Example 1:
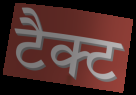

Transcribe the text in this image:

टैक्ट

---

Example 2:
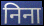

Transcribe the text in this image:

निना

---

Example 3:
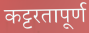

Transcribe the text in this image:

कट्टरतापूर्ण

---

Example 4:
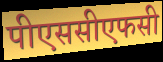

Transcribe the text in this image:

पीएससीएफसी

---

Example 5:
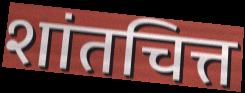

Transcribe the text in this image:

शांतचित्त